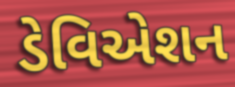
ડેવિએશન